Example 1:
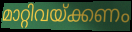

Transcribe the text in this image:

മാറ്റിവയ്ക്കണം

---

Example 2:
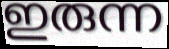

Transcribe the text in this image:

ഇരുന്ന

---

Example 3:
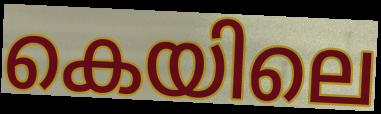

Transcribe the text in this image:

കെയിലെ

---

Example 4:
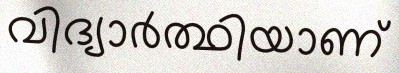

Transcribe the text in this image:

വിദ്യാർത്ഥിയാണ്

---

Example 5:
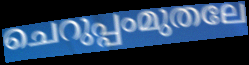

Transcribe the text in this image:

ചെറുപ്പംമുതലേ